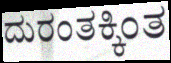
ದುರಂತಕ್ಕಿಂತ